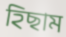
হিছাম